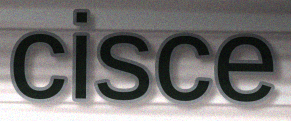
cisce